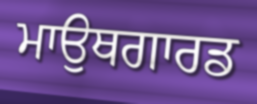
ਮਾਉਥਗਾਰਡ